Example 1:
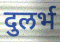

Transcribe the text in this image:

दुलर्भ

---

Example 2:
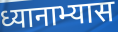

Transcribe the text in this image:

ध्यानाभ्यास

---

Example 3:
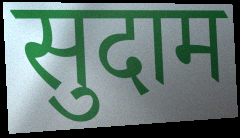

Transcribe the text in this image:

सुदाम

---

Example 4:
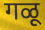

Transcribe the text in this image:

गळू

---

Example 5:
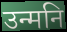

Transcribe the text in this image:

उन्मनि